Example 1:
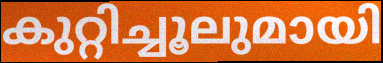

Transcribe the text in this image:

കുറ്റിച്ചൂലുമായി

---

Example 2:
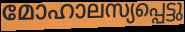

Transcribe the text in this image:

മോഹാലസ്യപ്പെട്ടു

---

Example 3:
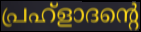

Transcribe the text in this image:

പ്രഹ്ളാദന്റെ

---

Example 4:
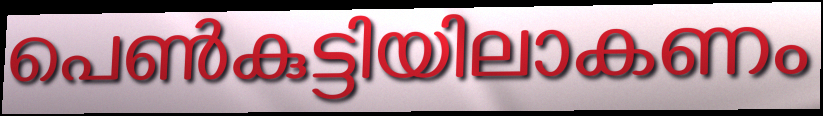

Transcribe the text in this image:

പെൺകുട്ടിയിലാകണം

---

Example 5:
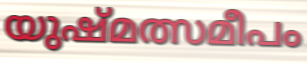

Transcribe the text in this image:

യുഷ്മത്സമീപം